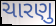
ચારણુ